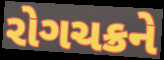
રોગચક્રને